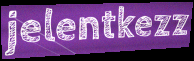
jelentkezz